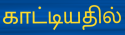
காட்டியதில்